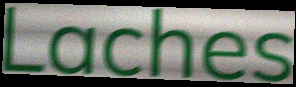
Laches